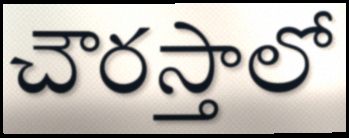
చౌరస్తాలో